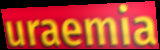
uraemia